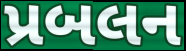
પ્રબલન